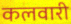
कलवारी